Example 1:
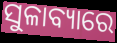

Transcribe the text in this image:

ସୁଳାବ୍ୟାରେ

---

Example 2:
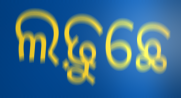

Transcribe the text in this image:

ଲଢ଼ୁଛେ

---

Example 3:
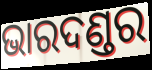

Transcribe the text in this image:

ଭାରଦଣ୍ଡର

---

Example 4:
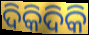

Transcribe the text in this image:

ଦିକିଦିକି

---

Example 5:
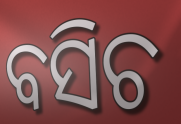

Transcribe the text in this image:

ବସିଚ